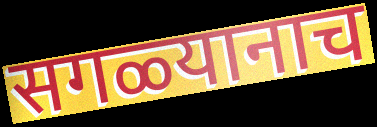
सगळ्यानाच